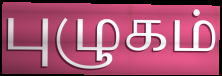
புழுகம்